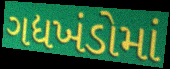
ગદ્યખંડોમાં